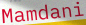
Mamdani